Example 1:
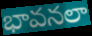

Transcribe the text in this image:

భావనలా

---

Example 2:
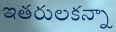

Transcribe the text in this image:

ఇతరులకన్నా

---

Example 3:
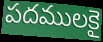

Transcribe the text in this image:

పదములకై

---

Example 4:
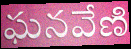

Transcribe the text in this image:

ఘనవేణి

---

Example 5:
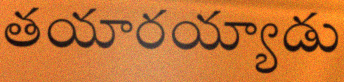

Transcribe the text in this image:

తయారయ్యాడు